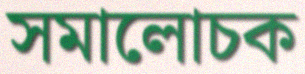
সমালোচক